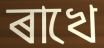
ৰাখে